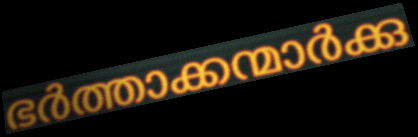
ഭർത്താക്കന്മാർക്കു